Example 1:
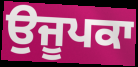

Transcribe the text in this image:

ਉਜੂਪਕਾ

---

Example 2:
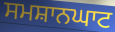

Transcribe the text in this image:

ਸਮਸ਼ਾਨਘਾਟ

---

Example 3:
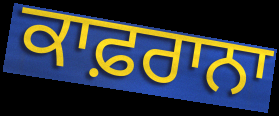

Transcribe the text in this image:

ਕਾਫ਼ਰਾਨਾ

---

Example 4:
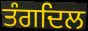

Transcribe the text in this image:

ਤੰਗਦਿਲ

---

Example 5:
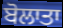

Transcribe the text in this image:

ਬੋਲਾਤਾ